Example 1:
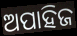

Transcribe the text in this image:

ଅପାହିଜ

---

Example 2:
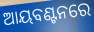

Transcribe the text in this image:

ଆୟବଣ୍ଟନରେ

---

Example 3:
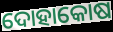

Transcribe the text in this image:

ଦୋହାକୋଷ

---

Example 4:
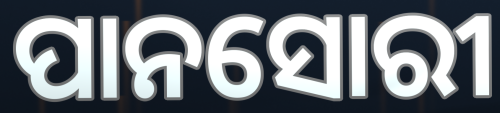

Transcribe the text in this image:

ପାନସୋରୀ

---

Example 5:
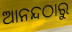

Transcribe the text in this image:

ଆନନ୍ଦଠାରୁ